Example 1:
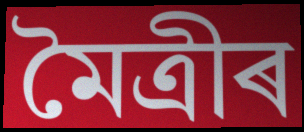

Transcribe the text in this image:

মৈত্ৰীৰ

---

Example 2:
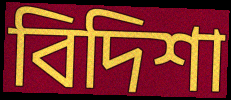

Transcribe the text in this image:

বিদিশা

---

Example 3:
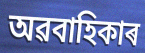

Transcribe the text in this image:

অৱবাহিকাৰ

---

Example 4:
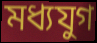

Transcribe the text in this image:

মধ্যযুগ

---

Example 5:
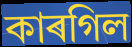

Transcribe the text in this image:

কাৰগিল